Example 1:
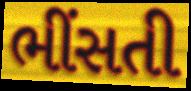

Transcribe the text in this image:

ભીંસતી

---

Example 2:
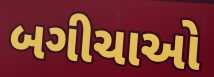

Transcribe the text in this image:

બગીચાઓ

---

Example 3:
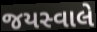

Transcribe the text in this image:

જયસ્વાલે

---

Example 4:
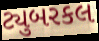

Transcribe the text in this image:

ટ્યુબરકલ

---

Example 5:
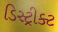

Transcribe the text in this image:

ડિસ્ટ્રીક્ટ